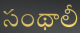
సంథాలీ